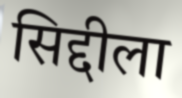
सिद्दीला